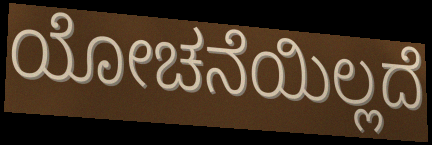
ಯೋಚನೆಯಿಲ್ಲದೆ